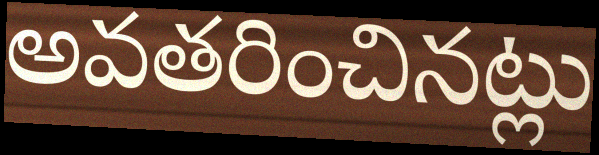
అవతరించినట్లు